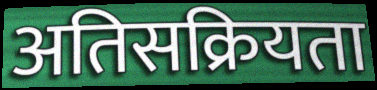
अतिसक्रियता